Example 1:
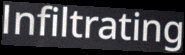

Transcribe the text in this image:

Infiltrating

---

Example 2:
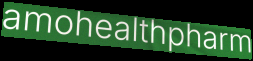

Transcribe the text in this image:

amohealthpharm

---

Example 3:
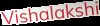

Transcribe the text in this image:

Vishalakshi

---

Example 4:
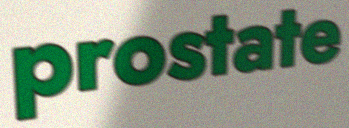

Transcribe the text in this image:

prostate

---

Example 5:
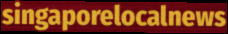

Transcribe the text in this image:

singaporelocalnews